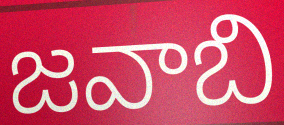
జవాబి